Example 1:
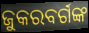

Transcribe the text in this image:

ଜୁକରବର୍ଗଙ୍କ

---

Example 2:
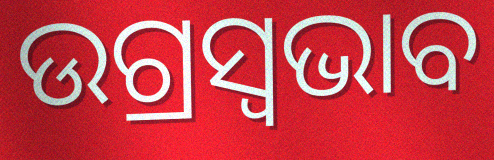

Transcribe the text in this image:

ଉଗ୍ରସ୍ୱଭାବ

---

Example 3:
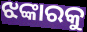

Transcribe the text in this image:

ଝଙ୍କାରକୁ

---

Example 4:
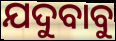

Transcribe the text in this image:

ଯଦୁବାବୁ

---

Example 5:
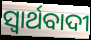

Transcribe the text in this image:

ସ୍ୱାର୍ଥବାଦୀ